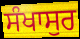
ਸੰਖਾਸੁਰ